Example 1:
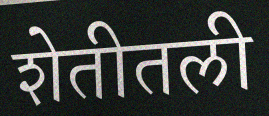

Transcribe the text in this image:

शेतीतली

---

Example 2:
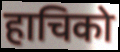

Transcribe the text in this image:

हाचिको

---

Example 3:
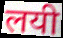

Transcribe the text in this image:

लयी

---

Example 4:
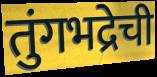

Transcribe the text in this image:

तुंगभद्रेची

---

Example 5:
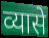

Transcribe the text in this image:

व्यासे